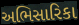
અભિસારિકા